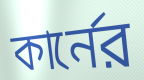
কার্নের